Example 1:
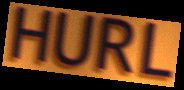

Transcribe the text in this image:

HURL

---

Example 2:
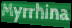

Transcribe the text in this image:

Myrrhina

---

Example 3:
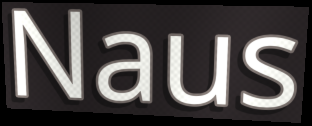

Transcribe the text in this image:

Naus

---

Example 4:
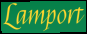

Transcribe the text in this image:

Lamport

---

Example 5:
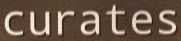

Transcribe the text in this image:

curates